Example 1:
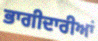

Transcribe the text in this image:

ਭਾਗੀਦਾਰੀਆਂ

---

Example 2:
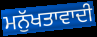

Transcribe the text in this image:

ਮਨੁੱਖਤਾਵਾਦੀ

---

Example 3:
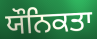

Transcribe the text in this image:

ਯੌਨਿਕਤਾ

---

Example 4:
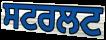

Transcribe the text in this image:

ਸਟਰਲਟ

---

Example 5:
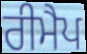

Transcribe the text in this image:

ਰੀਮੈਪ